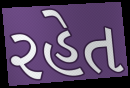
રહેત